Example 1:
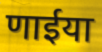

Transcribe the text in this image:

णाईया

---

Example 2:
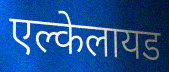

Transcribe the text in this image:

एल्केलायड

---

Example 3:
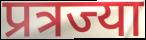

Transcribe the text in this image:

प्रत्रज्या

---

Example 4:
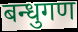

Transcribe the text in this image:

बन्धुगण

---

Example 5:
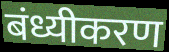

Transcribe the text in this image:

बंध्यीकरण